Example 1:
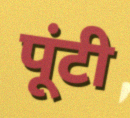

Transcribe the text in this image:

पूंटी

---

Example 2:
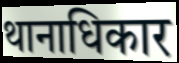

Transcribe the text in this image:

थानाधिकार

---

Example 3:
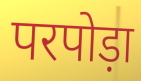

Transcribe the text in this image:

परपोड़ा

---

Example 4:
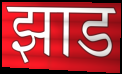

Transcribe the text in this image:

झाड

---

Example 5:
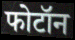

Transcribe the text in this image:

फोटॉन